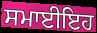
ਸਮਾਈਇਹ